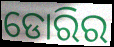
ଡୋରିର